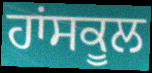
ਹਾਂਸਕੂਲ